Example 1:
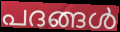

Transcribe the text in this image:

പദങ്ങൾ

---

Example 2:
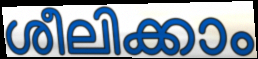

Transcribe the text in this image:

ശീലിക്കാം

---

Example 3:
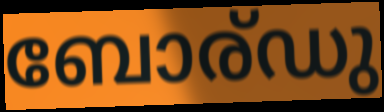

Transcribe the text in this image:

ബോര്ഡു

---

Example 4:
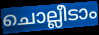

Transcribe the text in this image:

ചൊല്ലീടാം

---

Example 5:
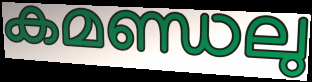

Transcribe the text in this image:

കമണ്ഡലു